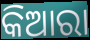
କିଆରା